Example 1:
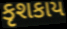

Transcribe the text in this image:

કૃશકાય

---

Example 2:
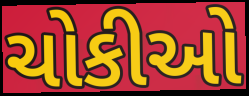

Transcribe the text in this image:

ચોકીઓ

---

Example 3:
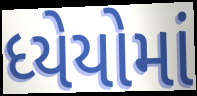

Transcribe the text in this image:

ધ્યેયોમાં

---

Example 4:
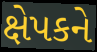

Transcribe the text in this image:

ક્ષેપકને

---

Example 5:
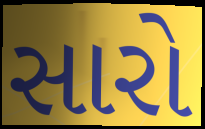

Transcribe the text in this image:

સારો